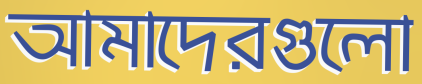
আমাদেরগুলো